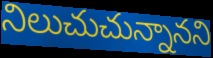
నిలుచుచున్నానని